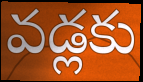
వడ్లకు